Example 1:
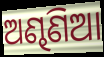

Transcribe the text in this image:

ଅଣ୍ଢଣିଆ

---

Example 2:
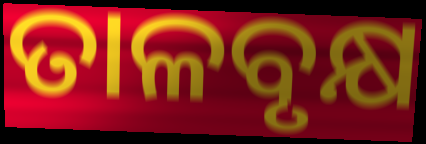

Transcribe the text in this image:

ତାଳବୃକ୍ଷ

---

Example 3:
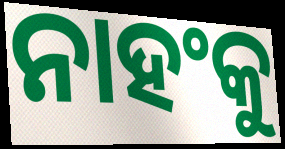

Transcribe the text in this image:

ନାହଂକୁ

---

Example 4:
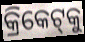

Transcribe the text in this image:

କ୍ରିକେଟ୍‌କୁ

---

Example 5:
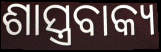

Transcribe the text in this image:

ଶାସ୍ତ୍ରବାକ୍ୟ